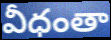
వీధంతా